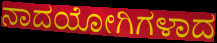
ನಾದಯೋಗಿಗಳಾದ